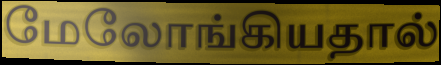
மேலோங்கியதால்